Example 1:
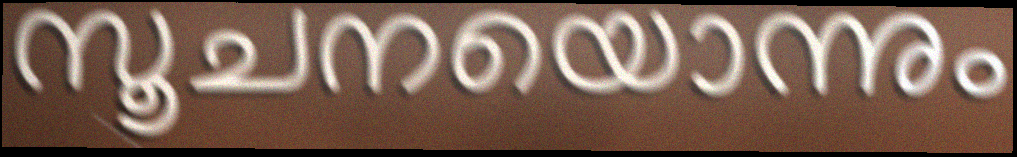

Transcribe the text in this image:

സൂചനയൊന്നും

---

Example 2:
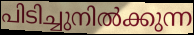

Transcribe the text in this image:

പിടിച്ചുനിൽക്കുന്ന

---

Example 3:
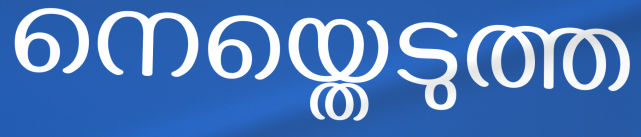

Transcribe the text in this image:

നെയ്തെടുത്ത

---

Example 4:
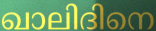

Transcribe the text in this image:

ഖാലിദിനെ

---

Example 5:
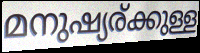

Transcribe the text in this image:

മനുഷ്യര്ക്കുള്ള